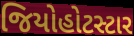
જિયોહોટસ્ટાર